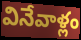
వినేవాళ్లం